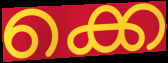
ക്കെ